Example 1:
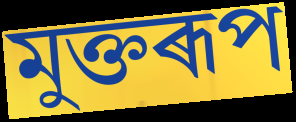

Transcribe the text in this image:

মুক্তৰূপ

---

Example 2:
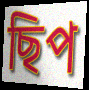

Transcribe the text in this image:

ছিপ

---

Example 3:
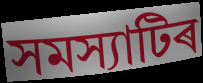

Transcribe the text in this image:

সমস্যাটিৰ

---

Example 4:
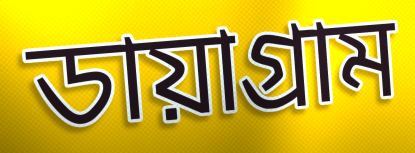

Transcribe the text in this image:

ডায়াগ্ৰাম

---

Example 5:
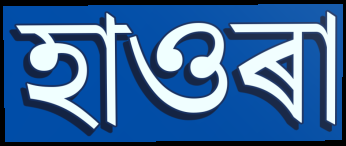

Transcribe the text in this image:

হাওৰা